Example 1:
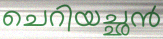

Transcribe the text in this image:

ചെറിയച്ഛൻ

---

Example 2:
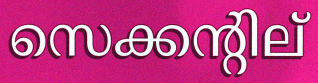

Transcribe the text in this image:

സെക്കന്റില്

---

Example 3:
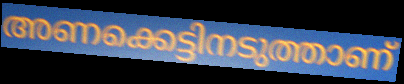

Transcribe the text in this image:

അണക്കെട്ടിനടുത്താണ്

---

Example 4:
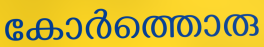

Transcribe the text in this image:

കോർത്തൊരു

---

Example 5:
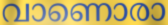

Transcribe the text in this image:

വാണൊരാ